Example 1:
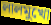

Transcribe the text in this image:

লালমুখো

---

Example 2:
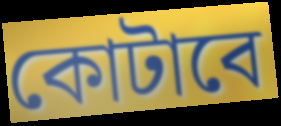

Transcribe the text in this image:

কোটাবে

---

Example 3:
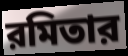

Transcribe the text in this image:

রমিতার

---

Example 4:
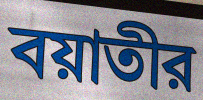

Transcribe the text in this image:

বয়াতীর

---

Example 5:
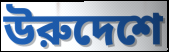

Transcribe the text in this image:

উরুদেশে